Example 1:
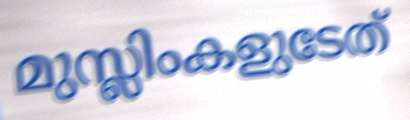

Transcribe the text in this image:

മുസ്ലിംകളുടേത്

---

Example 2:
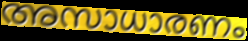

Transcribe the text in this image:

അസാധാരണം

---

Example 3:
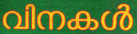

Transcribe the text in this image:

വിനകൾ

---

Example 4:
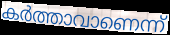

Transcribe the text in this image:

കർത്താവാണെന്ന്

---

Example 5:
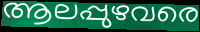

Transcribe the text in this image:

ആലപ്പുഴവരെ